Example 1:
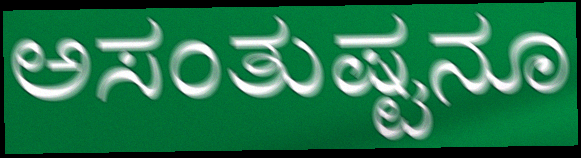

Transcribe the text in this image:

ಅಸಂತುಷ್ಟನೂ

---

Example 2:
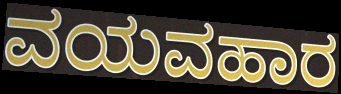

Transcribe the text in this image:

ವಯವಹಾರ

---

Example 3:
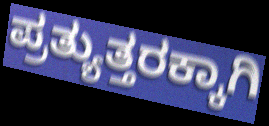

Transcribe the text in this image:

ಪ್ರತ್ಯುತ್ತರಕ್ಕಾಗಿ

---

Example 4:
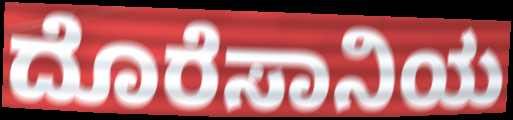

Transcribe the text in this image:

ದೊರೆಸಾನಿಯ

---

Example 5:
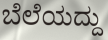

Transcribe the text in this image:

ಬೆಲೆಯದ್ದು